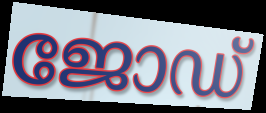
ജോഡ്